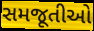
સમજૂતીઓ